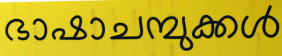
ഭാഷാചമ്പുക്കൾ